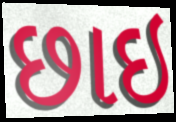
છાઇ